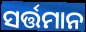
ସର୍ତ୍ତମାନ